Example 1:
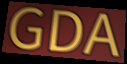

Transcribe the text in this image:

GDA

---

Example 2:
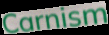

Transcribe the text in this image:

Carnism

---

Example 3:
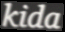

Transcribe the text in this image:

kida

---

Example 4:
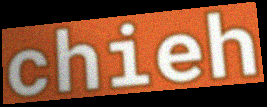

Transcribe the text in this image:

chieh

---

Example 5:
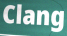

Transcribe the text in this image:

Clang